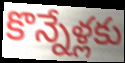
కొన్నేళ్లకు